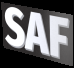
SAF